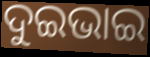
ଦୁଇଭାଇ